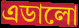
এডালো